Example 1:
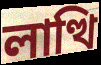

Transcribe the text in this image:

লাত্থি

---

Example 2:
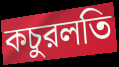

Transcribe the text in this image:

কচুরলতি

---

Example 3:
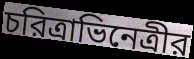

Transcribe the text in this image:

চরিত্রাভিনেত্রীর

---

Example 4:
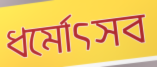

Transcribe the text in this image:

ধর্মোৎসব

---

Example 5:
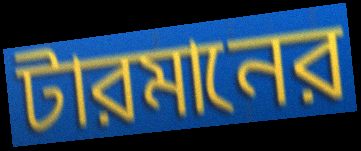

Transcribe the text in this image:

টারমানের